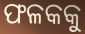
ଫଳକକୁ